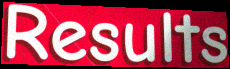
Results